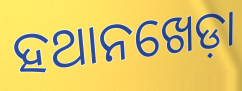
ହଥାନଖେଡ଼ା